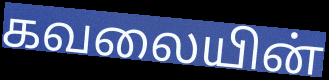
கவலையின்